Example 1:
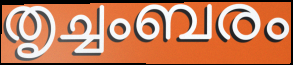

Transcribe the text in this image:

തൃച്ചംബരം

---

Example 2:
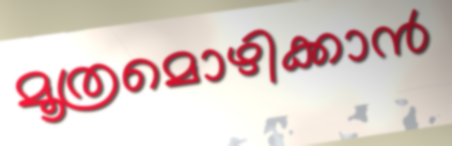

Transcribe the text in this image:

മൂത്രമൊഴിക്കാൻ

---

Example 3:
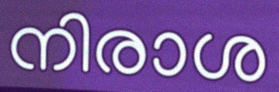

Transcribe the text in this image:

നിരാശ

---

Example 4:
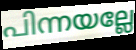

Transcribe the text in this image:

പിന്നയല്ലേ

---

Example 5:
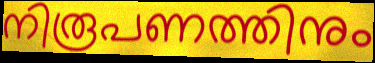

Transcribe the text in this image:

നിരൂപണത്തിനും